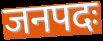
जनपदः